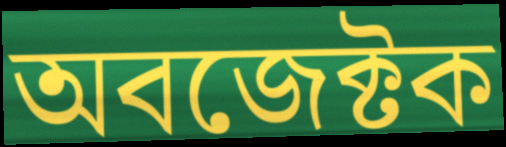
অবজেক্টক